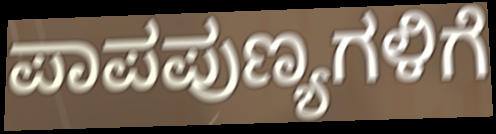
ಪಾಪಪುಣ್ಯಗಳಿಗೆ